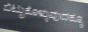
ಬಿಟ್ಟುಕೊಳ್ಳುವುದಕ್ಕೂ